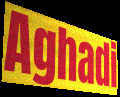
Aghadi